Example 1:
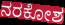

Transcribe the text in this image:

ನರಕೋಶ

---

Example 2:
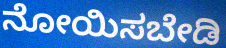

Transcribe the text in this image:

ನೋಯಿಸಬೇಡಿ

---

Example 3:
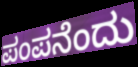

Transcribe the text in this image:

ಪಂಪನೆಂದು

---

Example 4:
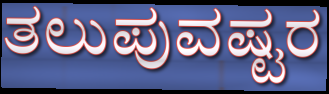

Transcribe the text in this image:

ತಲುಪುವಷ್ಟರ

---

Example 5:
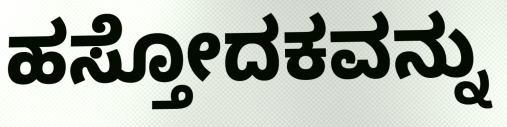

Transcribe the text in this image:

ಹಸ್ತೋದಕವನ್ನು